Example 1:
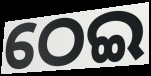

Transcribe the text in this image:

ଠେଇ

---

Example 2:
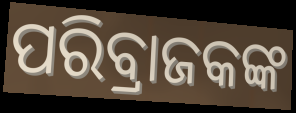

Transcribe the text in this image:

ପରିବ୍ରାଜକଙ୍କ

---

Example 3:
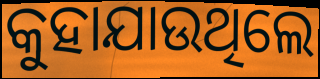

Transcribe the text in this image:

କୁହାଯାଉଥିଲେ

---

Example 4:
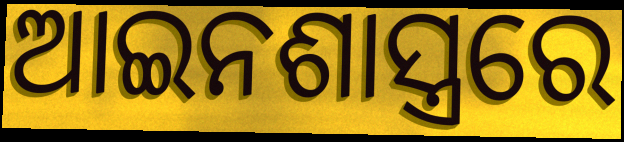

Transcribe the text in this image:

ଆଇନଶାସ୍ତ୍ରରେ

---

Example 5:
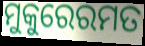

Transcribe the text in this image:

ମୁକୁରେରମତ